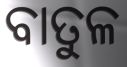
ବାତୁଳ